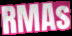
RMAs